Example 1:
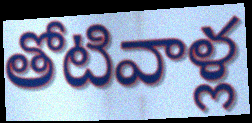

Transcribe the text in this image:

తోటివాళ్ల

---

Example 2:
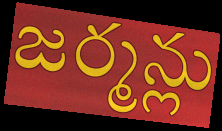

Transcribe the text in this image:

జర్మన్లు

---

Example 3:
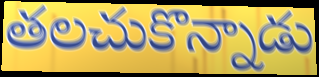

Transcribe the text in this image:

తలచుకొన్నాడు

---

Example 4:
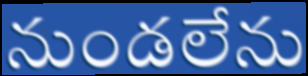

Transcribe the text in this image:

నుండలేను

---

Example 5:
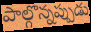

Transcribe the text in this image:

పాల్గొన్నప్పుడు